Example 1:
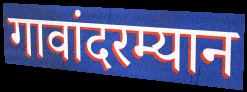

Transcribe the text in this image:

गावांदरम्यान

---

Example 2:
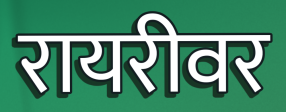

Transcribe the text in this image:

रायरीवर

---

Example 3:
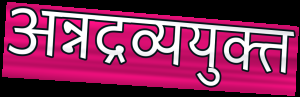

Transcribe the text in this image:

अन्नद्रव्ययुक्त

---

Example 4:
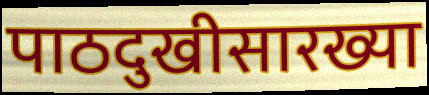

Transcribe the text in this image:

पाठदुखीसारख्या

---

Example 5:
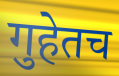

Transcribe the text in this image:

गुहेतच